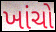
ખાંચો